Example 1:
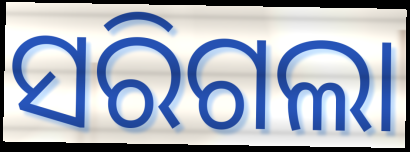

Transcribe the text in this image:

ସରିଗଲା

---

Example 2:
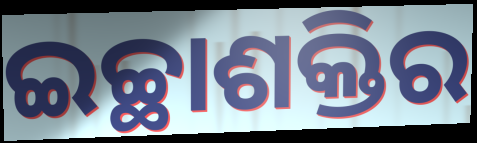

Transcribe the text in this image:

ଇଚ୍ଛାଶକ୍ତିର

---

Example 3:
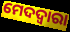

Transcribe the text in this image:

ମେଦଦ୍ଵାରା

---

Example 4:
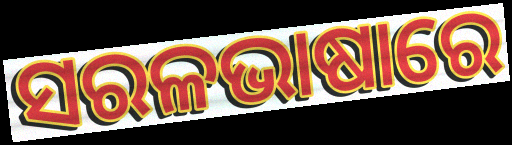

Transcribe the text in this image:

ସରଳଭାଷାରେ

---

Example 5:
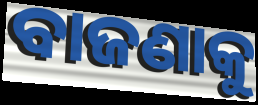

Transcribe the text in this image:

ବାଜଣାକୁ